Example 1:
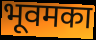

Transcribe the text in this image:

भूवमका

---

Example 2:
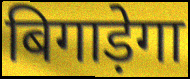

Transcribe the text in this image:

बिगाड़ेगा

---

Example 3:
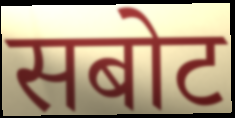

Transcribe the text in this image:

सबोट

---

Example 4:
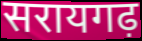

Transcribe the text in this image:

सरायगढ़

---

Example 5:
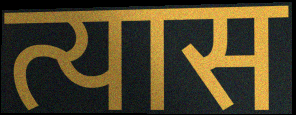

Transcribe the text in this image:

त्यास